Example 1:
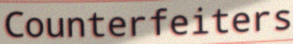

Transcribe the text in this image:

Counterfeiters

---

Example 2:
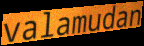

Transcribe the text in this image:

valamudan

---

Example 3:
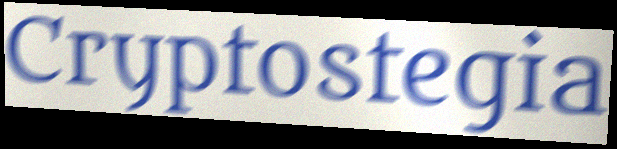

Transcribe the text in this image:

Cryptostegia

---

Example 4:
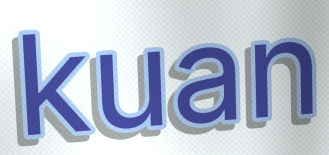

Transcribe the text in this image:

kuan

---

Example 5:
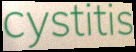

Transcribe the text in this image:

cystitis